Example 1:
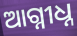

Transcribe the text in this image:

ଆଗ୍ନୀଧ୍ନ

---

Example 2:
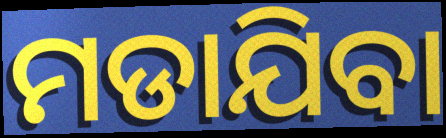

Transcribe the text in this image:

ମଡାଯିବା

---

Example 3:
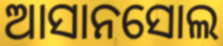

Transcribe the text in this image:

ଆସାନସୋଲ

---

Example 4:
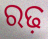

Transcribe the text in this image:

ରଢ଼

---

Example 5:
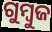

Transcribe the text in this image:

ଗୁମ୍ବୁଜ